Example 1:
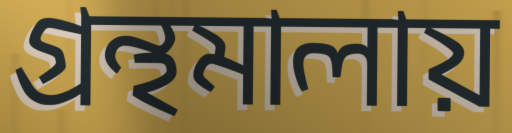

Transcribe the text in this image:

গ্রন্থমালায়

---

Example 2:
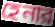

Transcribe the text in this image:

হেনার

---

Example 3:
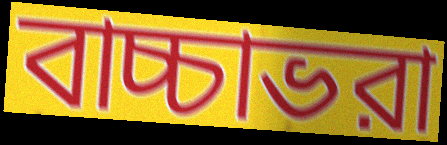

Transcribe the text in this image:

বাচ্চাভরা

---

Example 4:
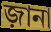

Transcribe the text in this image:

জ়ানা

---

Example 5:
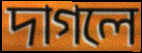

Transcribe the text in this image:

দাগলে